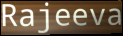
Rajeeva